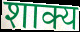
शाक्य